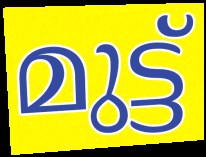
മുട്ട്